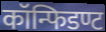
कॉन्फिडण्ट